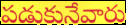
పడుకునేవారు